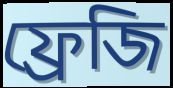
ফ্রেজি